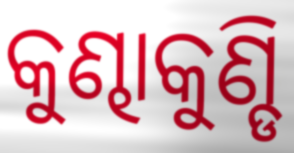
କୁଣ୍ଢାକୁଣ୍ଡି